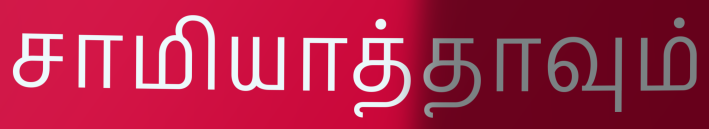
சாமியாத்தாவும்